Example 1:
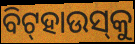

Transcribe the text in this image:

ବିଟ୍‌ହାଉସ୍‌କୁ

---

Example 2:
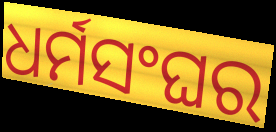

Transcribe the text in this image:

ଧର୍ମସଂଘର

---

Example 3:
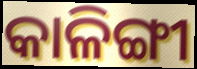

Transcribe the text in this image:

କାଳିଙ୍ଗୀ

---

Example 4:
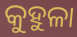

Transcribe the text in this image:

କୁହୁଳା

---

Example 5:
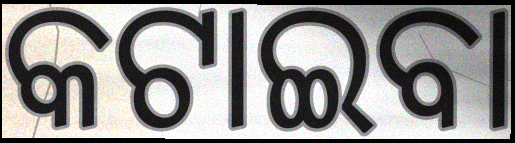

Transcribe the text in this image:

କଟାଇବା